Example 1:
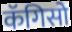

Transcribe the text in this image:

कॅगिसो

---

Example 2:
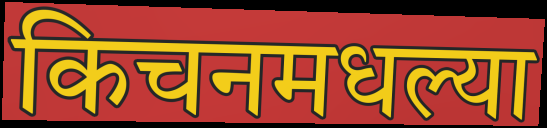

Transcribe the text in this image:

किचनमधल्या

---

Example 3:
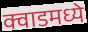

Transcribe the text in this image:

क्वाडमध्ये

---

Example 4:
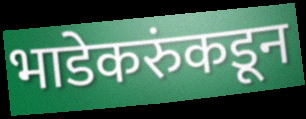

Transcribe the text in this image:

भाडेकरुंकडून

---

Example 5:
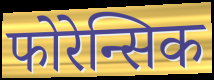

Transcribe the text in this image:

फोरेन्सिक